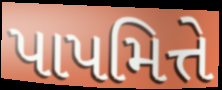
પાપમિત્તે